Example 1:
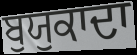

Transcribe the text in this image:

ਬੁਯੁਕਾਦਾ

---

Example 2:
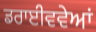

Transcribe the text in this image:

ਡਰਾਈਵਵੇਆਂ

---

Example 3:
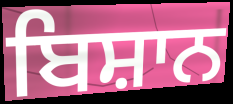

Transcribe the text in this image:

ਬਿਸ਼ਾਨ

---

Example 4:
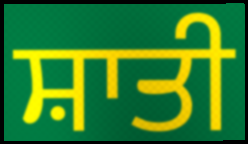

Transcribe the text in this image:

ਸ਼ਾਤੀ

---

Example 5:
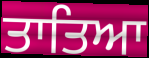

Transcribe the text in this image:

ਤਾਤਿਆ